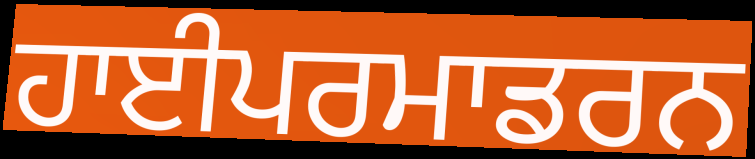
ਹਾਈਪਰਮਾਡਰਨ